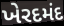
ખેરદમંદ